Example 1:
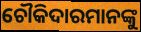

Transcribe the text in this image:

ଚୌକିଦାରମାନଙ୍କୁ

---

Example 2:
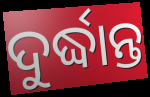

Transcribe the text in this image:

ଦୁର୍ଦ୍ଧାନ୍ତ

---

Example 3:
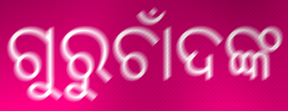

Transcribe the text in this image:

ଗୁରୁଚାଁଦଙ୍କ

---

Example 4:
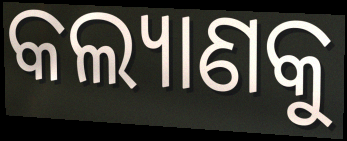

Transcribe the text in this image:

କଲ୍ୟାଣକୁ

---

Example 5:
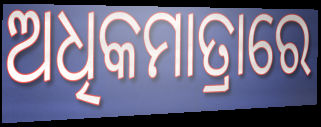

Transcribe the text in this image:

ଅଧିକମାତ୍ରାରେ